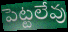
పెట్టలేవు